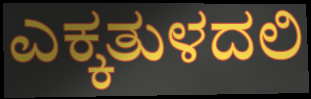
ಎಕ್ಕತುಳದಲಿ